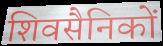
शिवसैनिकों